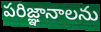
పరిజ్ఞానాలను